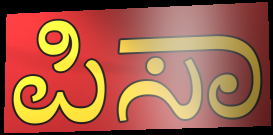
ಪಿಸಾ